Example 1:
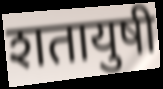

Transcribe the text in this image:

शतायुषी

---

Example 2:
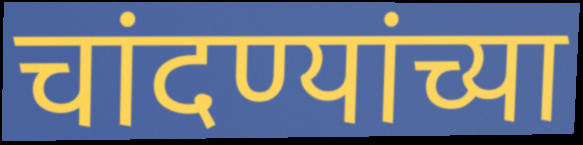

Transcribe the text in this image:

चांदण्यांच्या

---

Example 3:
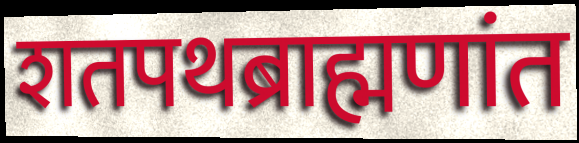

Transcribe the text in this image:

शतपथब्राह्मणांत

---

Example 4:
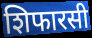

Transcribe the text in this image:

शिफारसी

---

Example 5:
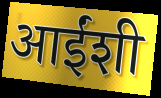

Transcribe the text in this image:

आईंशी